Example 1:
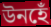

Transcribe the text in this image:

উনহেঁ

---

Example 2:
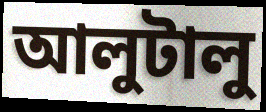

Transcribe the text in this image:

আলুটালু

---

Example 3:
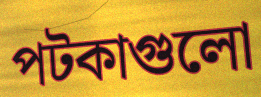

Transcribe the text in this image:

পটকাগুলো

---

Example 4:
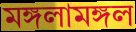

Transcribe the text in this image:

মঙ্গলামঙ্গল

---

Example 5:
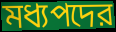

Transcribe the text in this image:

মধ্যপদের